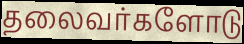
தலைவர்களோடு